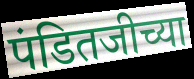
पंडितजीच्या